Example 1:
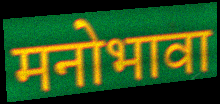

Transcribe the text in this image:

मनोभावा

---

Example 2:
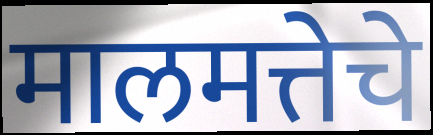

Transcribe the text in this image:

मालमत्तेचे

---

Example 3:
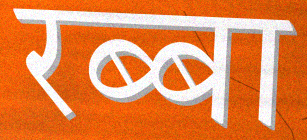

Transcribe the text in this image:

रब्बा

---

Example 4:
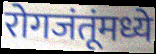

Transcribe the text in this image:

रोगजंतूंमध्ये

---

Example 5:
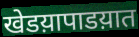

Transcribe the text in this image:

खेडय़ापाडय़ात